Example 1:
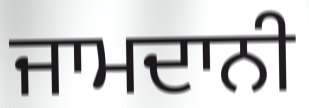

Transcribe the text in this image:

ਜਾਮਦਾਨੀ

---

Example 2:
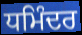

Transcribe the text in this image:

ਧਮਿੰਦਰ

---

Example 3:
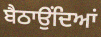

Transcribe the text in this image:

ਬੈਠਾਉਂਦਿਆਂ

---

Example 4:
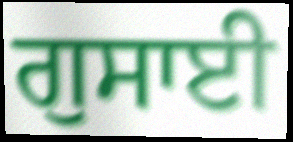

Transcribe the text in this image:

ਗੁਸਾਈ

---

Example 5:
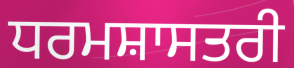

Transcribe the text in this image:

ਧਰਮਸ਼ਾਸਤਰੀ